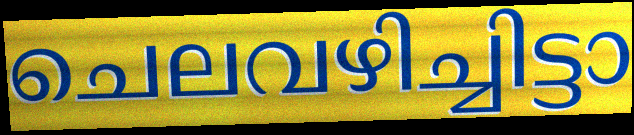
ചെലവഴിച്ചിട്ടാ